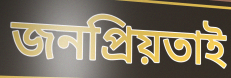
জনপ্রিয়তাই